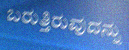
ಬರುತ್ತಿರುವುದನ್ನು